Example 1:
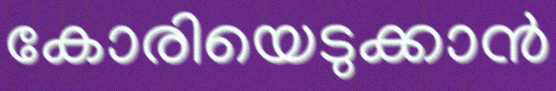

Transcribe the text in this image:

കോരിയെടുക്കാൻ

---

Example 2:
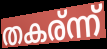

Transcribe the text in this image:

തകര്ന്ന്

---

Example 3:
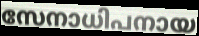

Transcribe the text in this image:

സേനാധിപനായ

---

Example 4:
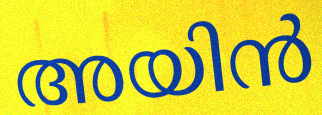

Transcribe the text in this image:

അയിൻ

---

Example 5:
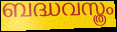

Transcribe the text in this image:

ബദ്ധവസ്ത്രം